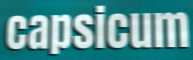
capsicum